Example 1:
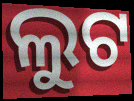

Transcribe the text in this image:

ଲୁଟ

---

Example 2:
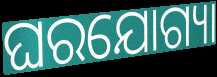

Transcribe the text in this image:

ଘରଯୋଗ୍ୟା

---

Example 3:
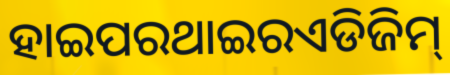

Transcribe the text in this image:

ହାଇପରଥାଇରଏଡିଜିମ୍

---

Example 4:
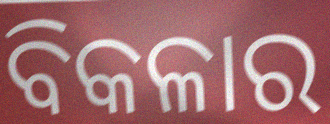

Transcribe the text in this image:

ବିକଳାର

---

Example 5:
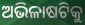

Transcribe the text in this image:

ଅଭିଳାଷଟିକୁ